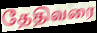
தேதிவரை